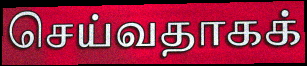
செய்வதாகக்